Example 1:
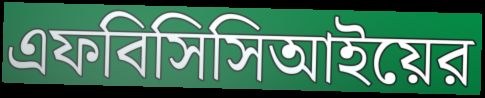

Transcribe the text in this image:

এফবিসিসিআইয়ের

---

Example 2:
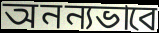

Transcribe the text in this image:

অনন্যভাবে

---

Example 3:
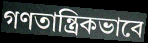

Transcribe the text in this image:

গণতান্ত্রিকভাবে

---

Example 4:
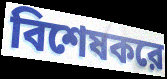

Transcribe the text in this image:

বিশেষকরে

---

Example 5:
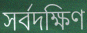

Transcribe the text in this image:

সর্বদক্ষিণ